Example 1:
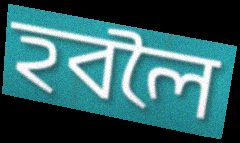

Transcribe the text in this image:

হবলৈ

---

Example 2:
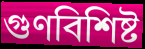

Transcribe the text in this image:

গুণবিশিষ্ট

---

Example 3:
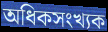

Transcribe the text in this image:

অধিকসংখ্যক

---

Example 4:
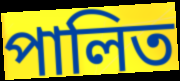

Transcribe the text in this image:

পালিত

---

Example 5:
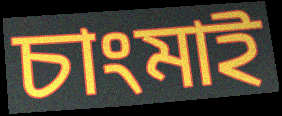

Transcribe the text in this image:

চাংমাই